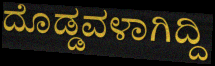
ದೊಡ್ಡವಳಾಗಿದ್ದಿ